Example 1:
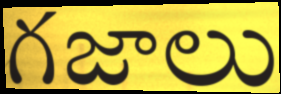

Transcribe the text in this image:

గజాలు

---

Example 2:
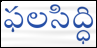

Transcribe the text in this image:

ఫలసిద్ధి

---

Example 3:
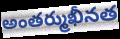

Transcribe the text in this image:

అంతర్ముఖీనత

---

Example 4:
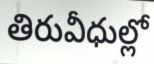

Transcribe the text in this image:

తిరువీధుల్లో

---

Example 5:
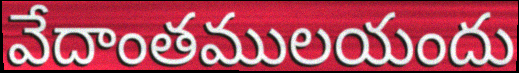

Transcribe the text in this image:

వేదాంతములయందు